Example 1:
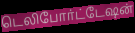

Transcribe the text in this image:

டெலிபோர்ட்டேஷன்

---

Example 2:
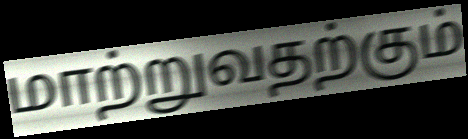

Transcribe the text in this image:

மாற்றுவதற்கும்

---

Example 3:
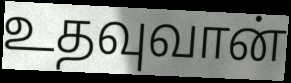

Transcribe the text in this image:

உதவுவான்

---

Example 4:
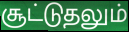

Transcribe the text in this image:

சூட்டுதலும்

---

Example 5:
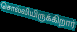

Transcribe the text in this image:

சொல்லியிருக்கிறார்